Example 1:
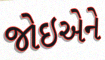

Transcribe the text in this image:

જોઇએને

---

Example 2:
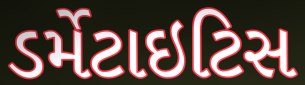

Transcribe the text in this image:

ડર્મેટાઇટિસ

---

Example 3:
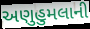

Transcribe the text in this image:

અણુહુમલાની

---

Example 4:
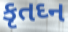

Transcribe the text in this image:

કૃતઘ્ન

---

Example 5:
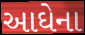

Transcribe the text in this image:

આઘેના